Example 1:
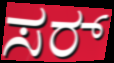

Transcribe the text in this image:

ಸರ‍್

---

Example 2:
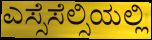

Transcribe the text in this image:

ಎಸ್ಸೆಸೆಲ್ಸಿಯಲ್ಲಿ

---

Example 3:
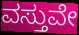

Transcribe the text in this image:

ವಸ್ತುವೇ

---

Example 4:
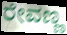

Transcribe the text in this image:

ರೇವಣ್ಣ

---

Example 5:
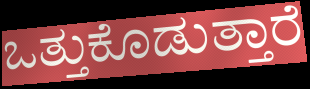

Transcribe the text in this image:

ಒತ್ತುಕೊಡುತ್ತಾರೆ